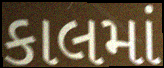
કાલમાં